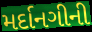
મર્દાનગીની